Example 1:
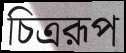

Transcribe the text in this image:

চিত্ররূপ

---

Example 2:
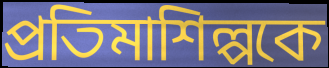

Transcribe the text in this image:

প্রতিমাশিল্পকে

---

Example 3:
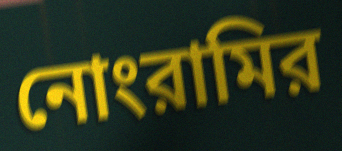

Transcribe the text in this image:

নোংরামির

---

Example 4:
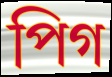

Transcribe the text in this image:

পিগ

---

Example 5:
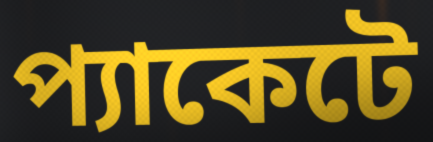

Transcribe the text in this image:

প্যাকেটে